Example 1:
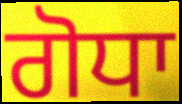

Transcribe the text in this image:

ਗੋਧਾ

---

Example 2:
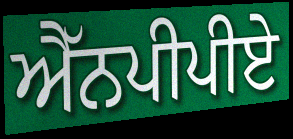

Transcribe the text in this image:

ਐੱਨਪੀਪੀਏ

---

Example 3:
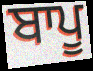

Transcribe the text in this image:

ਬਾਪੂ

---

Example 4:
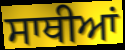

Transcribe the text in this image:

ਸਾਥੀਆਂ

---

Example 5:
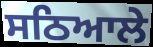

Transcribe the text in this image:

ਸਠਿਆਲੇ